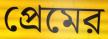
প্রেমের